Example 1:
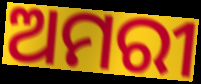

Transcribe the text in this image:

ଅମରୀ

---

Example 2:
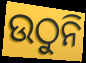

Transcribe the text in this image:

ଉଠୁନି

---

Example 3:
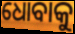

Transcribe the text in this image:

ଧୋବାକୁ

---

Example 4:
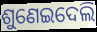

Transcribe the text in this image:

ଶୁଣେଇଦେଲି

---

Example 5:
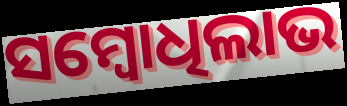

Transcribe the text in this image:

ସମ୍ବୋଧିଲାଭ